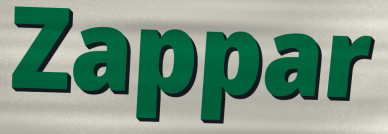
Zappar